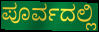
ಪೂರ್ವದಲ್ಲಿ